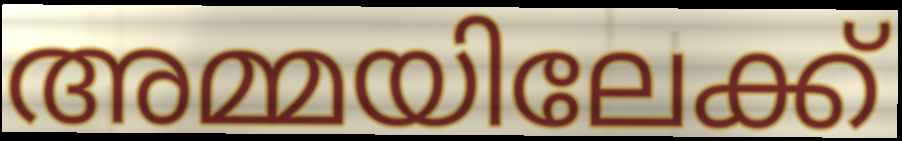
അമ്മയിലേക്ക്